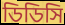
ডিডিসি